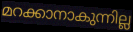
മറക്കാനാകുന്നില്ല